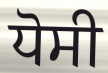
ਧੋਸੀ